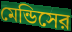
মেন্ডিসের